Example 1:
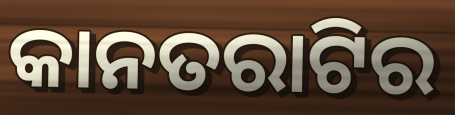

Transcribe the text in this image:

କାନତରାଟିର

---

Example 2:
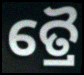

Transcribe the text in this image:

ତ୍ରୈ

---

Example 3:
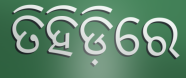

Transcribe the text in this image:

ତିହିଡ଼ିରେ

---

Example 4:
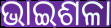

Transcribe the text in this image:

ଭାଇଶଳା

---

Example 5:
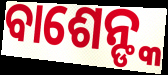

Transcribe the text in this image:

ବାଶେନ୍ଙ୍କ